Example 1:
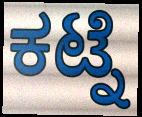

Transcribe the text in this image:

ಕಟ್ನೆ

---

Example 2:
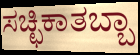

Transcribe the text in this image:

ಸಚ್ಛಿಕಾತಬ್ಬಾ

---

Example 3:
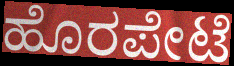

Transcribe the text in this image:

ಹೊರಪೇಟೆ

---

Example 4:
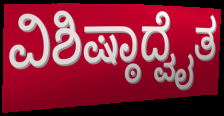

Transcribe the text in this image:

ವಿಶಿಷ್ಠಾದ್ವೈತ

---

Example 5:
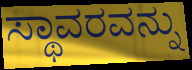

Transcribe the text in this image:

ಸ್ಥಾವರವನ್ನು